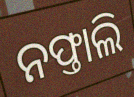
ନଫ୍ତାଲି